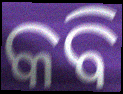
କବି